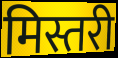
मिस्तरी